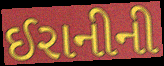
ઈરાનીની